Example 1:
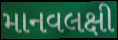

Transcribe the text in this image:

માનવલક્ષી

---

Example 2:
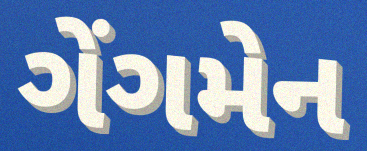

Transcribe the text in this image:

ગેંગમેન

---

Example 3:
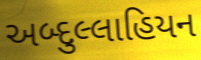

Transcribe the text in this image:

અબ્દુલ્લાહિયન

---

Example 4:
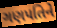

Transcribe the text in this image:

ગણપતિને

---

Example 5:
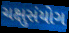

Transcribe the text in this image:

ચક્ષુસંયોગ